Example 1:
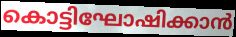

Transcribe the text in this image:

കൊട്ടിഘോഷിക്കാൻ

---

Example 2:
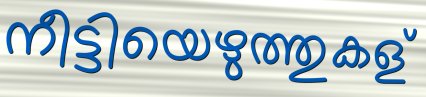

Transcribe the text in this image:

നീട്ടിയെഴുത്തുകള്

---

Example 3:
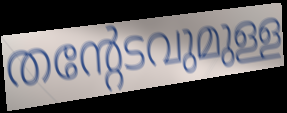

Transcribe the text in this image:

തന്റേടവുമുള്ള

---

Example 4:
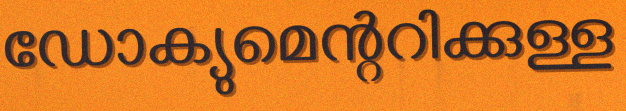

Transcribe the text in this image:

ഡോക്യുമെന്ററിക്കുള്ള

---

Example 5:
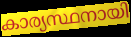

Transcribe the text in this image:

കാര്യസ്ഥനായി